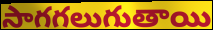
సాగగలుగుతాయి